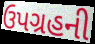
ઉપગ્રહની